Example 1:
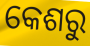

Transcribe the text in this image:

କେଶରୁ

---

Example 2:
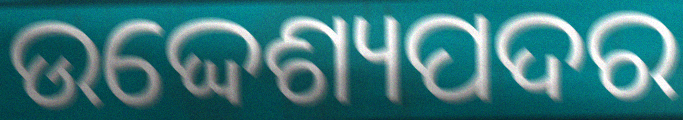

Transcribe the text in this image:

ଉଦ୍ଦେଶ୍ୟପଦର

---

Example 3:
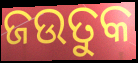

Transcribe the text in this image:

ଜଉତୁକ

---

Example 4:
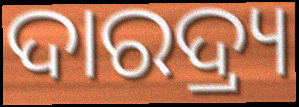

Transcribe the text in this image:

ଦାରଦ୍ର୍ୟ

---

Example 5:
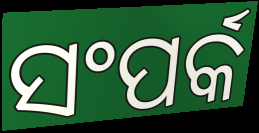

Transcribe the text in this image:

ସଂପର୍କ